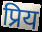
प्रिय